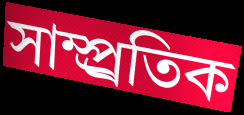
সাম্প্র্রতিক